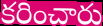
కరించారు